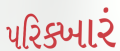
પરિક્ખારં